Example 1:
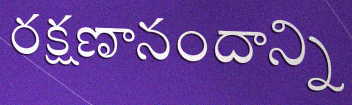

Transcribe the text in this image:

రక్షణానందాన్ని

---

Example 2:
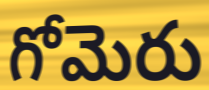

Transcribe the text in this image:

గోమెరు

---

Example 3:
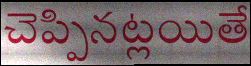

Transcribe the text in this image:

చెప్పినట్లయితే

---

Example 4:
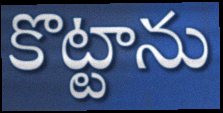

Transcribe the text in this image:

కొట్టాను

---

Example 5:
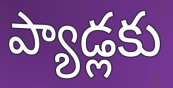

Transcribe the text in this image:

ప్యాడ్లకు